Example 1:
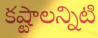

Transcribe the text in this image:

కష్టాలన్నిటి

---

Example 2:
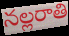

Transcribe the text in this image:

నల్లరాతి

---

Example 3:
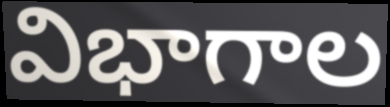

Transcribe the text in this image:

విభాగాల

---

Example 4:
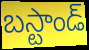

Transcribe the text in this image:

బస్టాండ్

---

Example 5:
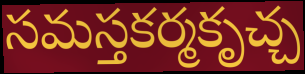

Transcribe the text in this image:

సమస్తకర్మకృచ్చ